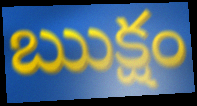
ఋక్షం